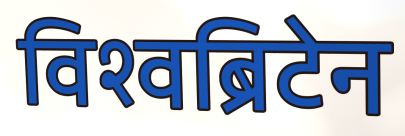
विश्वब्रिटेन